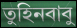
তুহিনবাবু